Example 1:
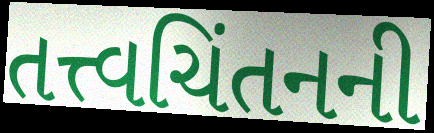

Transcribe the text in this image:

તત્ત્વચિંતનની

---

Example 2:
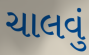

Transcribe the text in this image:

ચાલવું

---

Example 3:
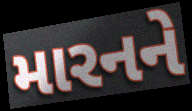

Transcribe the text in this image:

મારનને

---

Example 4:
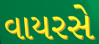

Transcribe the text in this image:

વાયરસે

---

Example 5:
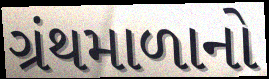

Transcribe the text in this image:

ગ્રંથમાળાનો